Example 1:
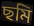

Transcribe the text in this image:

ছমি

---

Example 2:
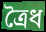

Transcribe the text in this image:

ত্রৈধ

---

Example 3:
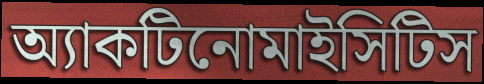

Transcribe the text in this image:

অ্যাকটিনোমাইসিটিস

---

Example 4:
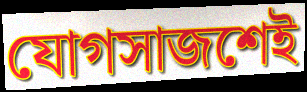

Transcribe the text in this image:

যোগসাজশেই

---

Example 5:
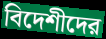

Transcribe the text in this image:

বিদেশীদের